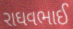
રાઘવભાઈ